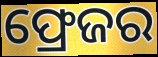
ଫ୍ରେଜର